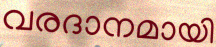
വരദാനമായി